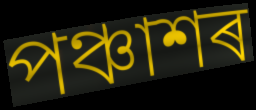
পঞ্চাশৰ